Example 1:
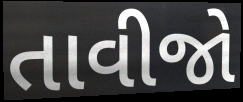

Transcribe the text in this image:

તાવીજો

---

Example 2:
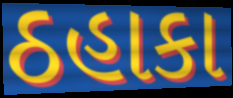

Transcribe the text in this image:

ઠહાકા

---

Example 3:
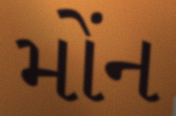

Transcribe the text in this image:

મોંન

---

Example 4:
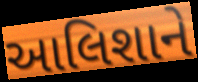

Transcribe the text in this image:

આલિશાને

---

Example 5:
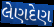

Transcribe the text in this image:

લેણદેણ